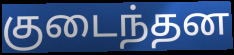
குடைந்தன